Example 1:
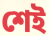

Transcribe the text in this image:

শেই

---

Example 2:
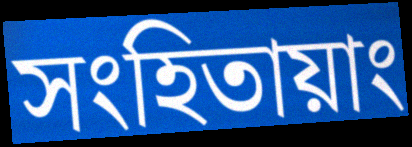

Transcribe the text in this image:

সংহিতায়াং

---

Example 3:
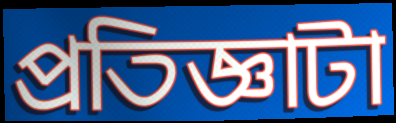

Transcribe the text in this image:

প্রতিজ্ঞাটা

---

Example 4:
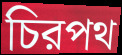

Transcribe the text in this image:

চিরপথ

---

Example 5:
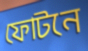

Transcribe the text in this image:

ফোটনে